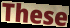
These